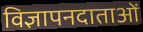
विज्ञापनदाताओं